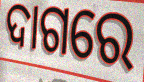
ଦାଗରେ